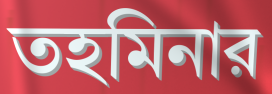
তহমিনার